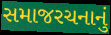
સમાજરચનાનું